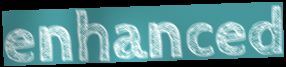
enhanced